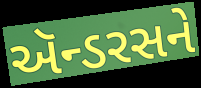
ઍન્ડરસને